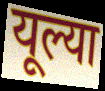
यूल्या